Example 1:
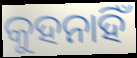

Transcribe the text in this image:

କୁହନାହିଁ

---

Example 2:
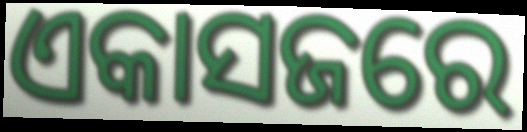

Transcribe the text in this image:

ଏକାସଜରେ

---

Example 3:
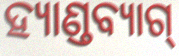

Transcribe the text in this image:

ହ୍ୟାଣ୍ଡବ୍ୟାଗ୍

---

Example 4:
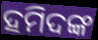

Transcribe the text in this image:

ହମିଦଙ୍କ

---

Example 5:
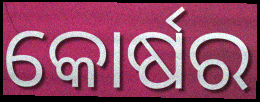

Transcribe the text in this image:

କୋର୍ଷର